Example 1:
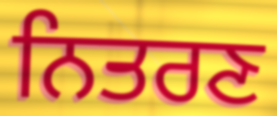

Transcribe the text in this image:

ਨਿਤਰਣ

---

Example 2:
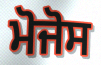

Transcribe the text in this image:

ਮੋਜੋਸ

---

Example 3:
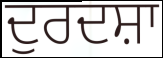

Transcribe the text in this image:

ਦੁਰਦਸ਼ਾ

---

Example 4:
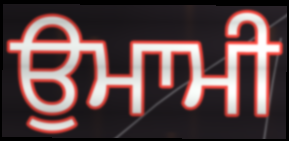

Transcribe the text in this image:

ਉਮਾਮੀ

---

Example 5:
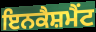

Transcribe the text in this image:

ਇਨਕੈਸ਼ਮੈਂਟ